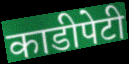
काडीपेटी